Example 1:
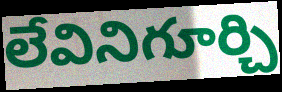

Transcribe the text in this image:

లేవినిగూర్చి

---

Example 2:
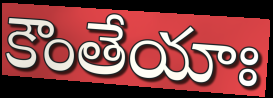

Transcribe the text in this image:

కౌంతేయాః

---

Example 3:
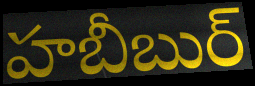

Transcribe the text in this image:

హబీబుర్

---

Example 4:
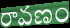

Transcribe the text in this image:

రావణం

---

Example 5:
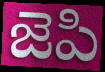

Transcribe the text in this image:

జెపి